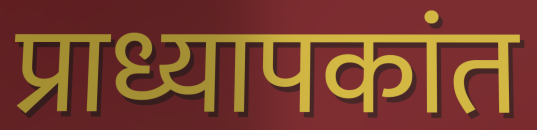
प्राध्यापकांत